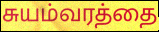
சுயம்வரத்தை